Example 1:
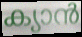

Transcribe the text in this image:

ക്യാൻ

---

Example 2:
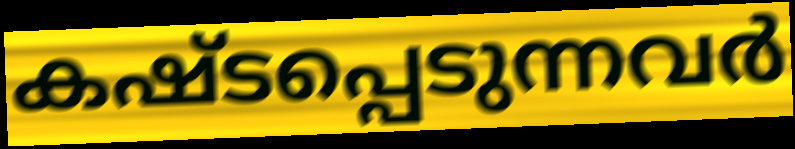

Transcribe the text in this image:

കഷ്ടപ്പെടുന്നവർ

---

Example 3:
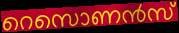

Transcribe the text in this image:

റെസൊണൻസ്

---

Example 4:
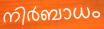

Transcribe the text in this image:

നിർബാധം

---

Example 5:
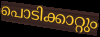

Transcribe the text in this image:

പൊടിക്കാറ്റും